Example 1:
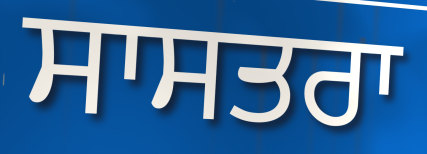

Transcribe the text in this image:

ਸਾਸਤਰਾ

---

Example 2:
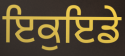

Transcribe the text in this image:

ਇਕੁਇਡੇ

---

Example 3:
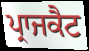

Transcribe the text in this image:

ਪ੍ਰਾਜਕੈਟ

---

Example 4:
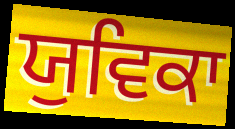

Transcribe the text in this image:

ਯੁਵਿਕਾ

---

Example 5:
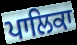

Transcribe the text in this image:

ਪਾਲਿਕਾ